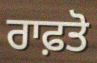
ਰਾਫ਼ਤੋ